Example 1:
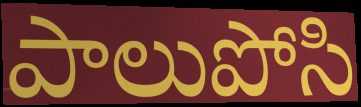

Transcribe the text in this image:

పాలుపోసి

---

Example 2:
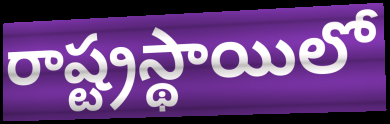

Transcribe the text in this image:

రాష్ట్రస్థాయిలో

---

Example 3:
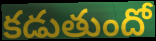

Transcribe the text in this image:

కడుతుందో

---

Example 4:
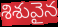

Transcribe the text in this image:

శిశువైన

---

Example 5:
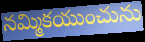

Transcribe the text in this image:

నమ్మికయుంచును